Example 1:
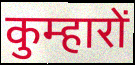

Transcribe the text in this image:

कुम्हारों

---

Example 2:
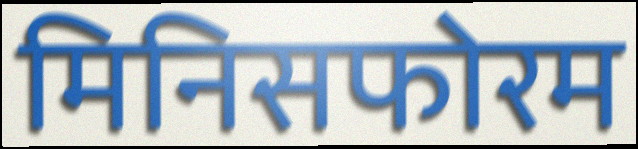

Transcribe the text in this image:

मिनिसफोरम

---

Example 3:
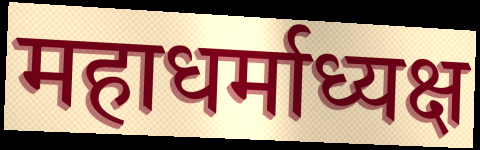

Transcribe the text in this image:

महाधर्माध्यक्ष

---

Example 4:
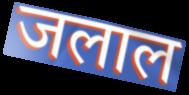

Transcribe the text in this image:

जलाल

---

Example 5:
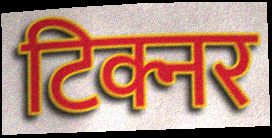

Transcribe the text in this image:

टिक्नर